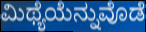
ಮಿಥ್ಯೆಯೆನ್ನುವೊಡೆ